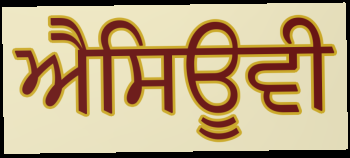
ਐਸਿਊਵੀ